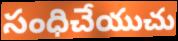
సంధిచేయుచు